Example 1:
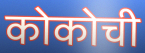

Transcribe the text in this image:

कोकोची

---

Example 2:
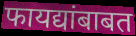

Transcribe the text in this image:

फायद्यांबाबत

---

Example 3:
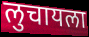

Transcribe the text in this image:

लुचायला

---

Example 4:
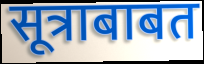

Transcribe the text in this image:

सूत्राबाबत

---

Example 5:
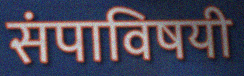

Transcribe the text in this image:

संपाविषयी